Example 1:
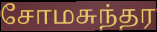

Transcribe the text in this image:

சோமசுந்தர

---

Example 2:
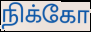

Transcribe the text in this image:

நிக்கோ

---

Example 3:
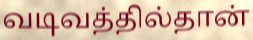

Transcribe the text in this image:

வடிவத்தில்தான்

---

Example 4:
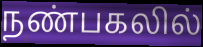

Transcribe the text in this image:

நண்பகலில்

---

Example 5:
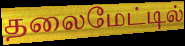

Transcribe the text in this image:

தலைமேட்டில்